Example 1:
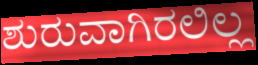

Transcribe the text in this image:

ಶುರುವಾಗಿರಲಿಲ್ಲ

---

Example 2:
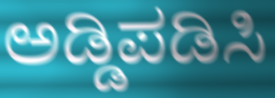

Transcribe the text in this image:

ಅಡ್ಡಿಪಡಿಸಿ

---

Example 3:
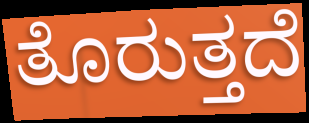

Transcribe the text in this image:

ತೊರುತ್ತದೆ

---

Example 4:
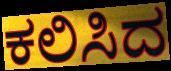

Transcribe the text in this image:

ಕಲಿಸಿದ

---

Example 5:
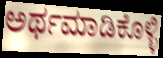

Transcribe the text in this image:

ಅರ್ಥಮಾಡಿಕೊಳ್ಳಿ